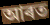
আৰত